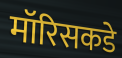
मॉरिसकडे